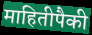
माहितीपैकी